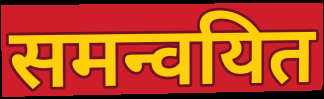
समन्वयित